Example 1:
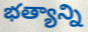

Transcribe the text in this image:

భత్యాన్ని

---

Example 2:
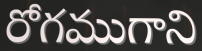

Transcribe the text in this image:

రోగముగాని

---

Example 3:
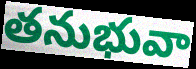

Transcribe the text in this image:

తనుభువా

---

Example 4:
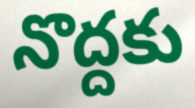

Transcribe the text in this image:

నొద్దకు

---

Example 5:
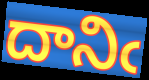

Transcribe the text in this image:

దానిఁ